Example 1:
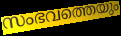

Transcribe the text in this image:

സംഭവത്തെയും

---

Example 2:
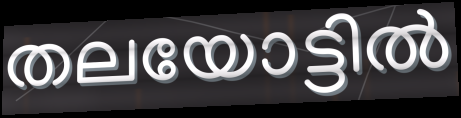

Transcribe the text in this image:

തലയോട്ടിൽ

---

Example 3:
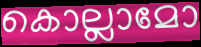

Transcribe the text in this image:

കൊല്ലാമോ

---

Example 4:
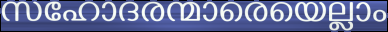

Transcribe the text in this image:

സഹോദരന്മാരെയെല്ലാം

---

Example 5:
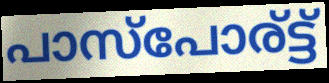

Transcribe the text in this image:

പാസ്പോര്ട്ട്